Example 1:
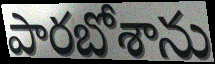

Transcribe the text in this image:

పారబోశాను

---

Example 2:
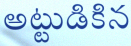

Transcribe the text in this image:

అట్టుడికిన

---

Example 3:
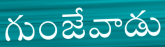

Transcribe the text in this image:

గుంజేవాడు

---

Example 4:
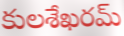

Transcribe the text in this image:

కులశేఖరమ్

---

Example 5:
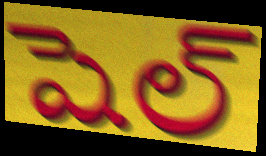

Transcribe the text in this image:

షెల్